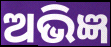
ଅଭିଜ୍ଞ